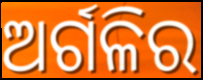
ଅର୍ଗଳିର